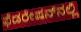
ಫೆಡರೇಷನ್‌ನಲ್ಲಿ